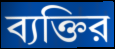
ব্যক্তির